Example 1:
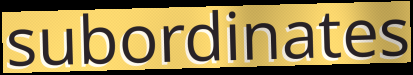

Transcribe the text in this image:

subordinates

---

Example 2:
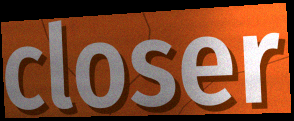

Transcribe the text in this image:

closer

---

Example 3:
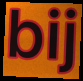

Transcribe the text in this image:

bij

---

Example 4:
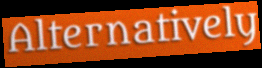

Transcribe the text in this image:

Alternatively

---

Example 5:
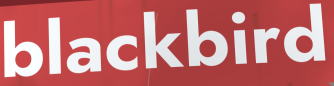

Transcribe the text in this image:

blackbird